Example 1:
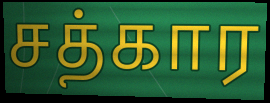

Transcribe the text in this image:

சத்கார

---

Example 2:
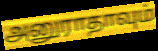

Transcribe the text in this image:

அனுராதாவும்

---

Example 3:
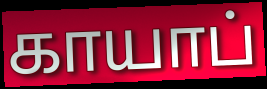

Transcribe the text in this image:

காயாப்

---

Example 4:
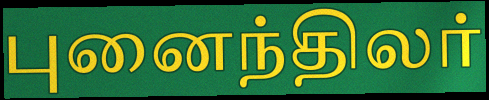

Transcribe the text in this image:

புனைந்திலர்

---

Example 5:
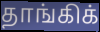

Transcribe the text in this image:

தாங்கிக்